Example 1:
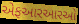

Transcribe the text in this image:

એફઆરઆરઓ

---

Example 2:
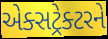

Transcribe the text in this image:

એક્સટ્રેક્ટરને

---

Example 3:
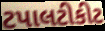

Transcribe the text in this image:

ટપાલટીકીટ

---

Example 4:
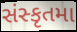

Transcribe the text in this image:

સંસ્કૃતમા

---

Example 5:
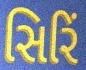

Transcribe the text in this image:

સિરિં